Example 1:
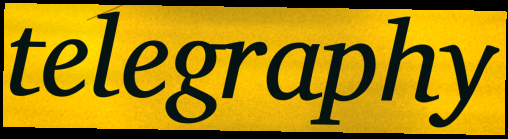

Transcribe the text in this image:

telegraphy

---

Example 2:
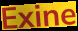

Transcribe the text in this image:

Exine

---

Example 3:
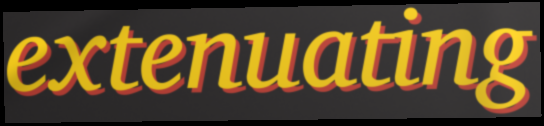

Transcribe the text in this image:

extenuating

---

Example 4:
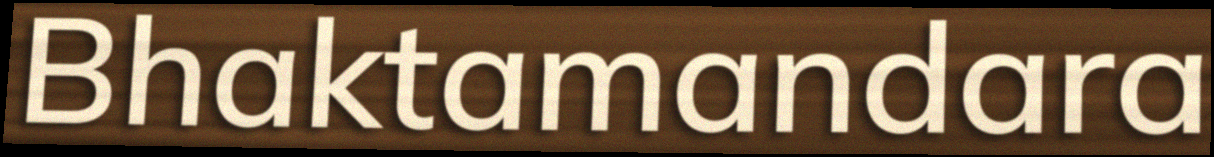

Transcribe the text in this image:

Bhaktamandara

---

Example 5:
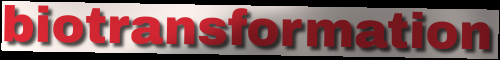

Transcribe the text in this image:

biotransformation